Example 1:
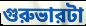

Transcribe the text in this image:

গুরুভারটা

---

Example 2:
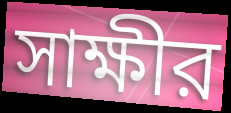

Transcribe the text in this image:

সাক্ষীর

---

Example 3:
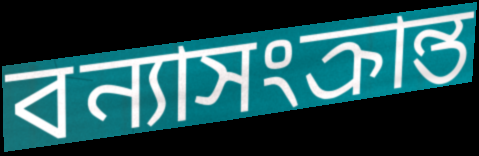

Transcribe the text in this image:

বন্যাসংক্রান্ত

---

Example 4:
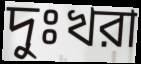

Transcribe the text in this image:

দুঃখরা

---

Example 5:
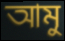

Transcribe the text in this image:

আমু